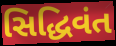
સિદ્ધિવંત